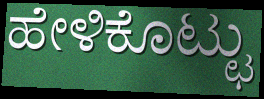
ಹೇಳಿಕೊಟ್ಟು